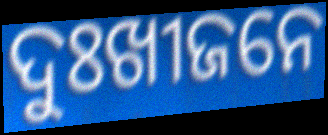
ଦୁଃଖୀଜନେ